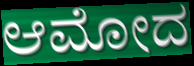
ಆಮೋದ